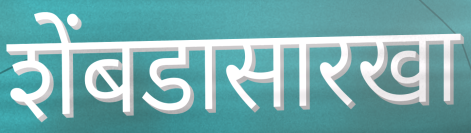
शेंबडासारखा